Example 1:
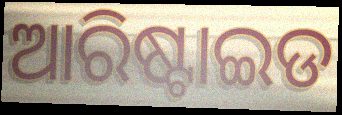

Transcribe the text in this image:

ଆରିଷ୍ଟାଇଡ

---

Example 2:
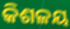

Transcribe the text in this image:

କିଶଳୟ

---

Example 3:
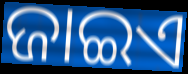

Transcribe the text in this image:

ଜାଇଏ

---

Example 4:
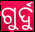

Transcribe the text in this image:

ଗୁର୍ଦୁ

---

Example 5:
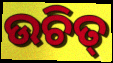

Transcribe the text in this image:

ଉଚିତ୍